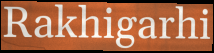
Rakhigarhi